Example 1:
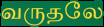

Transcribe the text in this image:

வருதலே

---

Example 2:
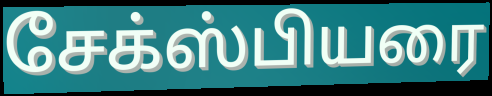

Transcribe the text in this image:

சேக்ஸ்பியரை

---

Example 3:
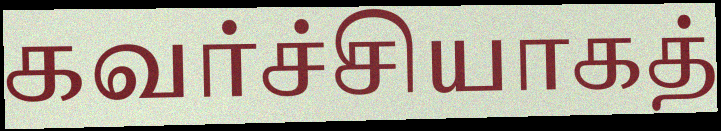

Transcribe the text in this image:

கவர்ச்சியாகத்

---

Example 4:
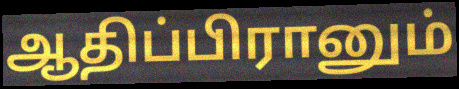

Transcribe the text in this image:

ஆதிப்பிரானும்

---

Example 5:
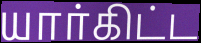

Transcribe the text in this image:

யார்கிட்ட